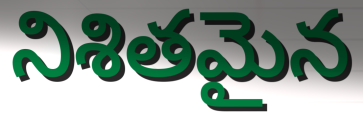
నిశితమైన